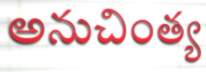
అనుచింత్య